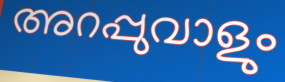
അറപ്പുവാളും